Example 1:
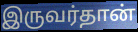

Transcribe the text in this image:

இருவர்தான்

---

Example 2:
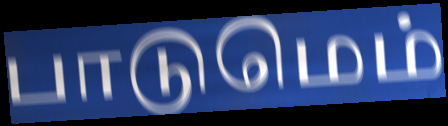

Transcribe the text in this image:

பாடுமெம்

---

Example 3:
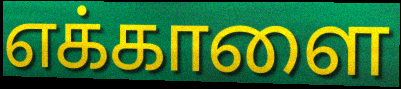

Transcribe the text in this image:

எக்காளை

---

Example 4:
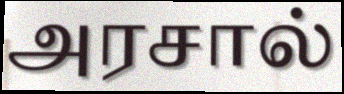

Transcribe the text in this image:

அரசால்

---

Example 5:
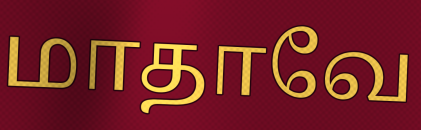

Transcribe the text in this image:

மாதாவே